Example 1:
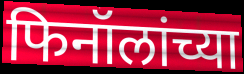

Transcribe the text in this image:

फिनॉलांच्या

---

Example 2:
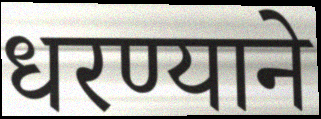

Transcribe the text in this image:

धरण्याने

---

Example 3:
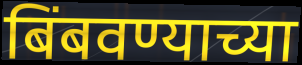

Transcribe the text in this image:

बिंबवण्याच्या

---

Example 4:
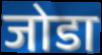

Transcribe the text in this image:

जोडा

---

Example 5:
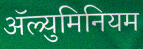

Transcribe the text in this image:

ॲल्युमिनियम